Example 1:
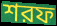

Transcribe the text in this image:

শরফ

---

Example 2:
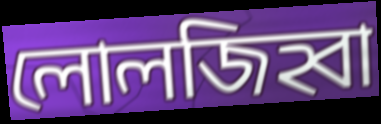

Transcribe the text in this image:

লোলজিহ্বা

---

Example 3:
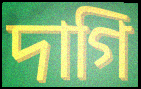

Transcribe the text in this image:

দাগি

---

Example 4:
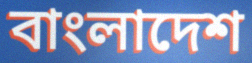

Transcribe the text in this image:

বাংলাদেশ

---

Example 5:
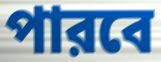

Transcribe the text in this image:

পারবে